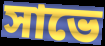
সাভে